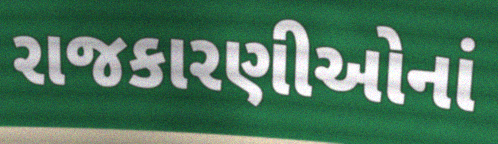
રાજકારણીઓનાં